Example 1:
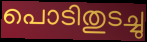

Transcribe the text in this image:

പൊടിതുടച്ചു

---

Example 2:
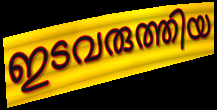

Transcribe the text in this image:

ഇടവരുത്തിയ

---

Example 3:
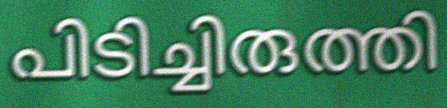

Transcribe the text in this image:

പിടിച്ചിരുത്തി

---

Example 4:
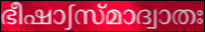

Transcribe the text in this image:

ഭീഷാഽസ്മാദ്വാതഃ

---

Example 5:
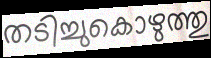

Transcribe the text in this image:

തടിച്ചുകൊഴുത്തു